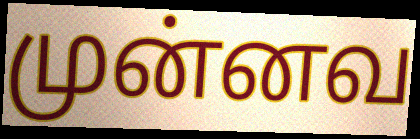
முன்னவ